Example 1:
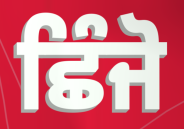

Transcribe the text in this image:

ਛਿੰਜੋ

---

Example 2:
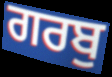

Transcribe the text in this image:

ਗਰਬੁ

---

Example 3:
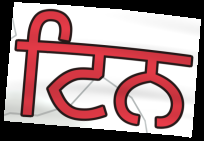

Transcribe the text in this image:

ਟਿਨ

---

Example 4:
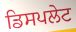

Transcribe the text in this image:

ਡਿਸਪਲੇਟ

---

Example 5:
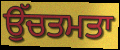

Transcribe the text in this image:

ਉੱਚਤਮਤਾ